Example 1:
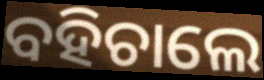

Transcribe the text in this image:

ବହିଚାଲେ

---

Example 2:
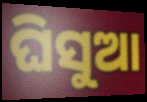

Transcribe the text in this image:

ଘିସୁଆ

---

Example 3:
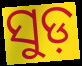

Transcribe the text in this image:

ସୁଡ଼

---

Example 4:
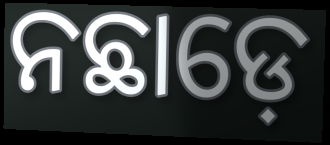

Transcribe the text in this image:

ନଛାଡ଼େ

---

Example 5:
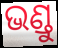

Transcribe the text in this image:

ଭଣ୍ଡୁ